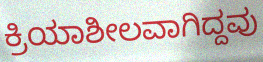
ಕ್ರಿಯಾಶೀಲವಾಗಿದ್ದವು